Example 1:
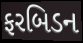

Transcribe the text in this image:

ફરબિડન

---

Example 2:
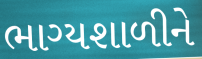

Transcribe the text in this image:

ભાગ્યશાળીને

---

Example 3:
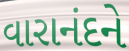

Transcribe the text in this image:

વારાનંદને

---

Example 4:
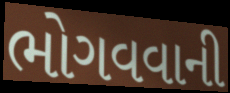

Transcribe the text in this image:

ભોગવવાની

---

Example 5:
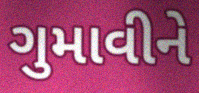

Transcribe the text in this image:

ગુમાવીને